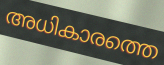
അധികാരത്തെ